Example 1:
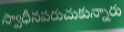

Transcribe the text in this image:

స్వాధీనపరుచుకున్నారు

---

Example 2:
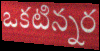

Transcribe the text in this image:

ఒకటిన్నర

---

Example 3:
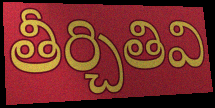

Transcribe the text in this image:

తీర్చితివి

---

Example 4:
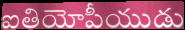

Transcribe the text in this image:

ఐతియోపీయుడు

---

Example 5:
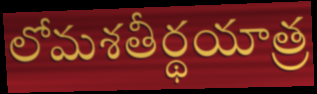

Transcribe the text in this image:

లోమశతీర్థయాత్ర